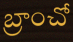
బ్రాంచో